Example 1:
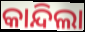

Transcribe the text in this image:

କାନ୍ଦିଲା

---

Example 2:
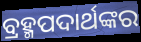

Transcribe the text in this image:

ବ୍ରହ୍ମପଦାର୍ଥଙ୍କର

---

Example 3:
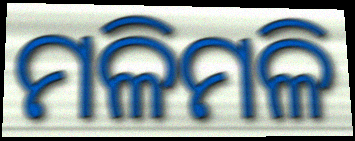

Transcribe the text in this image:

ମଳିମଳି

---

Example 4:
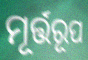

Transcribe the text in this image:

ମୂର୍ତ୍ତରୂପ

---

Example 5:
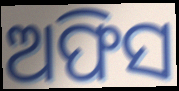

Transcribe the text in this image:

ଅଫିସ